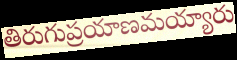
తిరుగుప్రయాణమయ్యారు